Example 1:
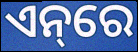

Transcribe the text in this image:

ଏନ୍‌ରେ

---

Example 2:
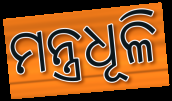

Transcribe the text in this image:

ମନ୍ତ୍ରଧୂଳି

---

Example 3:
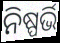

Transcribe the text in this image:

ନିଷ୍ପର୍ଭି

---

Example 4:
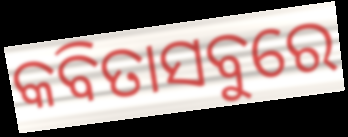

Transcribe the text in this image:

କବିତାସବୁରେ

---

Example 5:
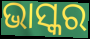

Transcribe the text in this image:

ଭାସ୍କର